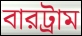
বারট্রাম